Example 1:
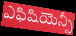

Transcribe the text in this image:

ఎఫిషియెన్సీ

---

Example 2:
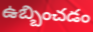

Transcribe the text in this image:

ఉబ్బించడం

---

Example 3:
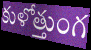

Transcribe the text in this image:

కుళోత్తుంగ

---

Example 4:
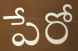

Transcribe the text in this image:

పేరో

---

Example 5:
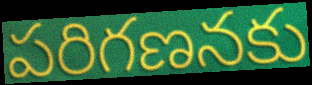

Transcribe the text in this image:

పరిగణనకు